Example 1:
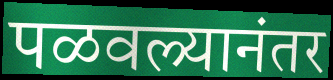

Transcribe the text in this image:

पळवल्यानंतर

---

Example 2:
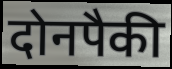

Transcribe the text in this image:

दोनपैकी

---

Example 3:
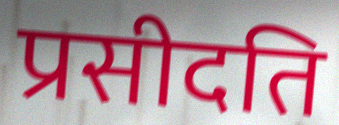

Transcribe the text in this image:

प्रसीदति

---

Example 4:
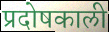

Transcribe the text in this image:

प्रदोषकाली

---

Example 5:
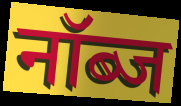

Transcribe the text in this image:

नॉब्ज